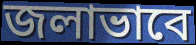
জলাভাবে